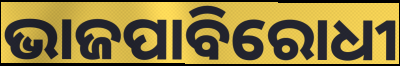
ଭାଜପାବିରୋଧୀ